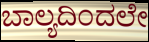
ಬಾಲ್ಯದಿಂದಲೇ